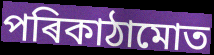
পৰিকাঠামোত